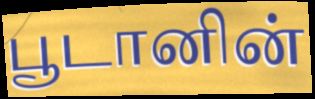
பூடானின்